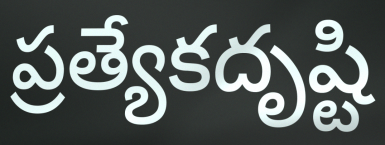
ప్రత్యేకదృష్టి